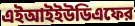
এইআইইউডিএফের